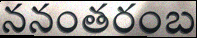
ననంతరంబ